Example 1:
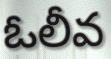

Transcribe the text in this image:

ఓలీవ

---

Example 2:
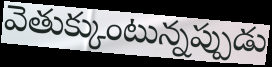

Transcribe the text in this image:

వెతుక్కుంటున్నప్పుడు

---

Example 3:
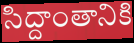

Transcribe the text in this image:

సిద్దాంతానికి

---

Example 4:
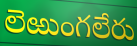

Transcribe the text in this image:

లెఱుంగలేరు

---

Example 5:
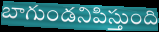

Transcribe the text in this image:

బాగుండనిపిస్తుంది